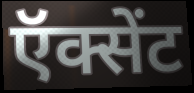
ऍक्सेंट